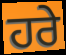
ਹਰੇ